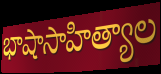
భాషాసాహిత్యాల